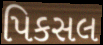
પિકસલ